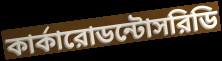
কার্কারোডন্টোসরিডি